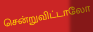
சென்றுவிட்டாலோ